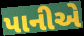
પાનીએ